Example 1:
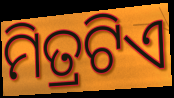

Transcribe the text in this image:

ମିତ୍ରଟିଏ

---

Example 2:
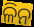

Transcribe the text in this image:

ଳିନ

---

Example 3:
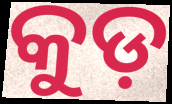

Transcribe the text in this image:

କୁଡ଼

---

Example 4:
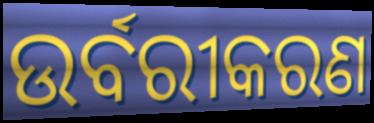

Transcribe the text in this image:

ଉର୍ବରୀକରଣ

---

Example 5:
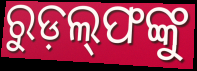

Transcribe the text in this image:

ରୁଡ଼ଲ୍‍ଫଙ୍କୁ